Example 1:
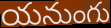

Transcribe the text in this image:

యనుంగు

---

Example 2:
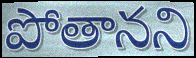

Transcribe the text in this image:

పోతానని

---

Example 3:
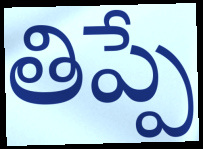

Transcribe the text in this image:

తిప్పే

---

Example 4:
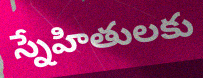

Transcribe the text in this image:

స్నేహితులకు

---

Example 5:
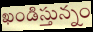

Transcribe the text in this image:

ఖండిస్తున్నం